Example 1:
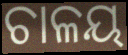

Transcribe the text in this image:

ଚାଳୟ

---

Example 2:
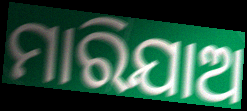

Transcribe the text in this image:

ମାରିଯାଅ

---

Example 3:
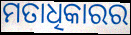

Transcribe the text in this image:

ମତାଧିକାରର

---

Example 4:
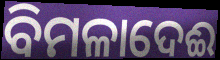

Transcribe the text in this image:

ବିମଳାଦେଈ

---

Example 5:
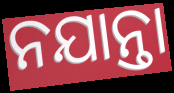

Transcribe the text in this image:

ନଯାନ୍ତା